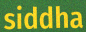
siddha